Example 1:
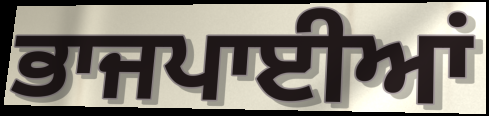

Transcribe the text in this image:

ਭਾਜਪਾਈਆਂ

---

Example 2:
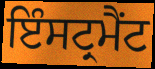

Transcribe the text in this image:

ਇੰਸਟ੍ਰਮੈਂਟ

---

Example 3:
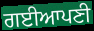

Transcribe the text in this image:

ਗਈਆਪਣੀ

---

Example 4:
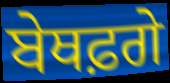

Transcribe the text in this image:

ਬੇਥਫ਼ਗੇ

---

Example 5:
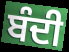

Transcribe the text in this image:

ਬੰਦੀ